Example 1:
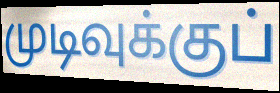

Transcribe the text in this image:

முடிவுக்குப்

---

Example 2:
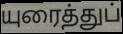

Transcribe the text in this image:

யுரைத்துப்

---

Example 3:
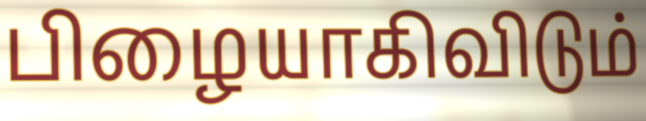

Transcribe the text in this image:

பிழையாகிவிடும்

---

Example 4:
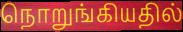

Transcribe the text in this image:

நொறுங்கியதில்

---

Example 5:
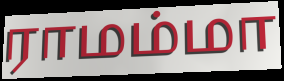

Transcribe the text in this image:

ராமம்மா